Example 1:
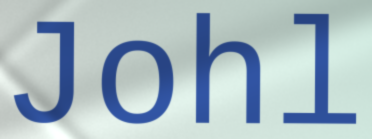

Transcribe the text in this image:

Johl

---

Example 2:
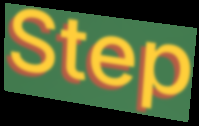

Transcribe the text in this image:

Step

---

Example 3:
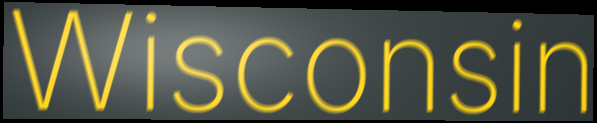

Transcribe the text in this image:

Wisconsin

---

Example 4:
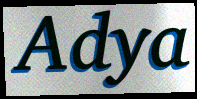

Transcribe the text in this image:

Adya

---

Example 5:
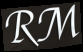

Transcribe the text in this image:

RM